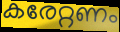
കരേറ്റണം